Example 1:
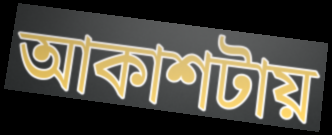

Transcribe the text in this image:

আকাশটায়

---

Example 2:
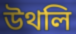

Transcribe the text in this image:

উথলি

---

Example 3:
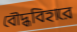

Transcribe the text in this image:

বৌদ্ধবিহারে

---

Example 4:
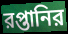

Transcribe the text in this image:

রপ্তানির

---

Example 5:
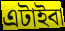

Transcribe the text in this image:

এটাইবা